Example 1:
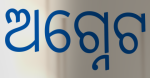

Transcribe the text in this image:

ଅଗ୍ନେଟ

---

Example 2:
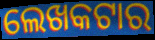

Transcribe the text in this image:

ଲେଖକଟାର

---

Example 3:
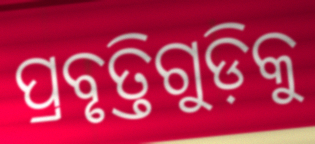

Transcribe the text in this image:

ପ୍ରବୃତ୍ତିଗୁଡ଼ିକୁ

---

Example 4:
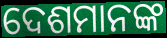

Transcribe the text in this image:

ଦେଶମାନଙ୍କ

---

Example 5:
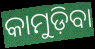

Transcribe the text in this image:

କାମୁଡ଼ିବା